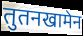
तुतनखामेन